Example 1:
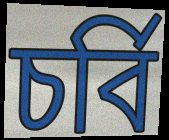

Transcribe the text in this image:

চর্বি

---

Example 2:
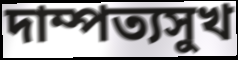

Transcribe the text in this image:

দাম্পত্যসুখ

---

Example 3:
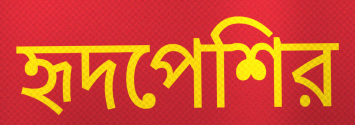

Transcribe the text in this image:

হৃদপেশির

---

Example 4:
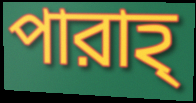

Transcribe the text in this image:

পারাহ্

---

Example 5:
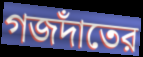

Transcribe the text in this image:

গজদাঁতের